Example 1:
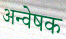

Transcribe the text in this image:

अन्वेषक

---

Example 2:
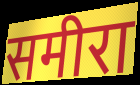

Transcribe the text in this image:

समीरा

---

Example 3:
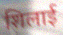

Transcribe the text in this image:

शिलाई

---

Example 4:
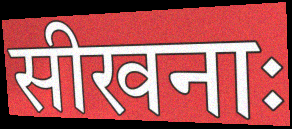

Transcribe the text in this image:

सीखनाः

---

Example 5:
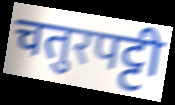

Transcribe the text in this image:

चतुरपट्टी